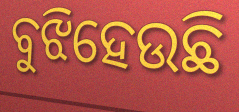
ବୁଝିହେଉଛି